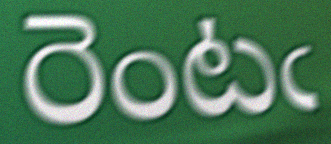
రెంటఁ